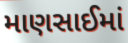
માણસાઈમાં